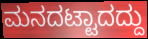
ಮನದಟ್ಟಾದದ್ದು